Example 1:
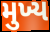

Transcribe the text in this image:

મુખ્ય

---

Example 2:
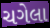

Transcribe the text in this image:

ચગેલા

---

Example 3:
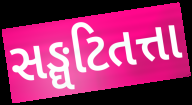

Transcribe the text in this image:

સઙ્ઘટિતત્તા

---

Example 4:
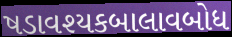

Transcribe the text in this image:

ષડાવશ્યકબાલાવબોધ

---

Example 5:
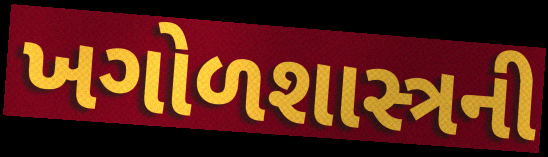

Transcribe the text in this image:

ખગોળશાસ્ત્રની